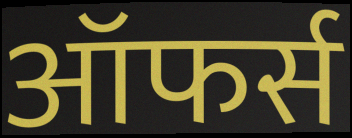
ऑफर्स